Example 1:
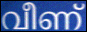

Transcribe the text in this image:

വീണ്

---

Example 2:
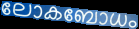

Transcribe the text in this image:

ലോകബോധം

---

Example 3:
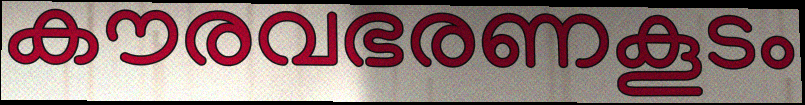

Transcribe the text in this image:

കൗരവഭരണകൂടം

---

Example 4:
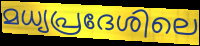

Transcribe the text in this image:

മധ്യപ്രദേശിലെ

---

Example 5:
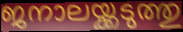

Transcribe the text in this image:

ജനാലയ്ക്കടുത്തു